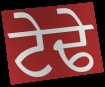
ਟੇਢੇ